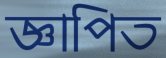
জ্ঞাপিত